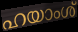
ഹയാംശ്